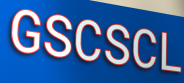
GSCSCL